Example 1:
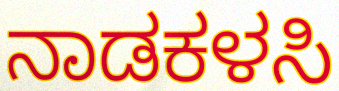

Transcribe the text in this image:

ನಾಡಕಳಸಿ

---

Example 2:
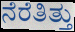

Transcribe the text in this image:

ನೆರೆತಿತ್ತು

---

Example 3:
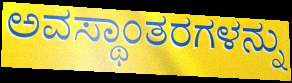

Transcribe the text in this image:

ಅವಸ್ಥಾಂತರಗಳನ್ನು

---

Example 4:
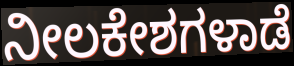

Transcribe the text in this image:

ನೀಲಕೇಶಗಳಾಡೆ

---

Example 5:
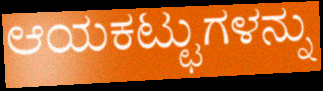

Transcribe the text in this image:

ಆಯಕಟ್ಟುಗಳನ್ನು